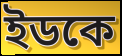
ইডকে